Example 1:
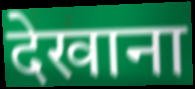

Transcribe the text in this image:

देखाना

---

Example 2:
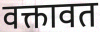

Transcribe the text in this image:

वक्तावत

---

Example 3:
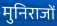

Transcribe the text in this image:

मुनिराजों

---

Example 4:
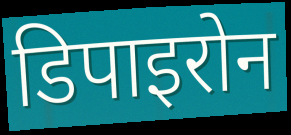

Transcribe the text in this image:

डिपाइरोन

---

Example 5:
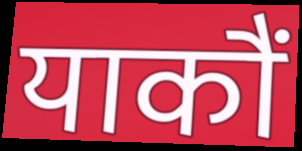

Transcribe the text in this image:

याकौं